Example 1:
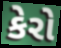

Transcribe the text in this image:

કેરો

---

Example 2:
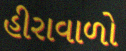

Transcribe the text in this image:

હીરાવાળો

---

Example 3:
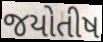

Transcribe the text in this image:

જયોતીષ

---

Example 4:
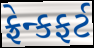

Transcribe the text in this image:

ફ્રેન્કફર્ટ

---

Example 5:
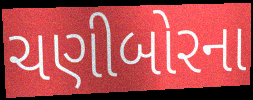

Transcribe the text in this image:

ચણીબોરના